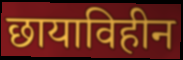
छायाविहीन